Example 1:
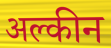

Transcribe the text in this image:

अल्कीन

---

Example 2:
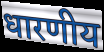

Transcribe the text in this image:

धारणीय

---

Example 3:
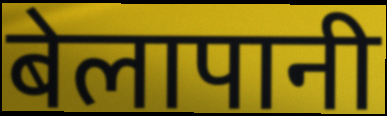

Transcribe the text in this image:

बेलापानी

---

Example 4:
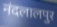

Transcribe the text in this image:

नंदलालपुर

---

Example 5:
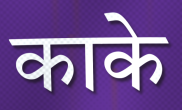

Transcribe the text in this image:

काके